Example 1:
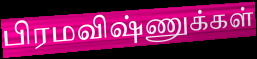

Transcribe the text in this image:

பிரமவிஷ்ணுக்கள்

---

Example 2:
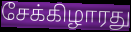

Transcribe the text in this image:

சேக்கிழாரது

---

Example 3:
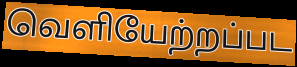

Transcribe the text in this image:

வெளியேற்றப்பட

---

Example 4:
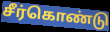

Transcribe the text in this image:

சீர்கொண்டு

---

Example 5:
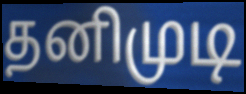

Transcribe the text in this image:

தனிமுடி